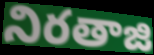
నిరతాజి